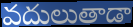
వదులుతాడా